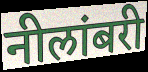
नीलांबरी